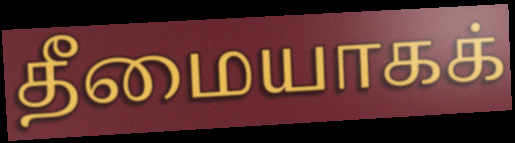
தீமையாகக்